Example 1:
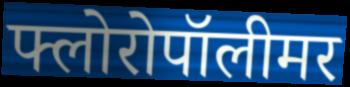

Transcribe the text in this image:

फ्लोरोपॉलीमर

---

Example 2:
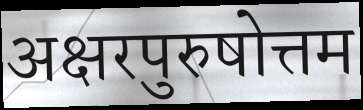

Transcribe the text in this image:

अक्षरपुरुषोत्तम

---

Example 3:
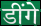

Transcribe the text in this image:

डींगे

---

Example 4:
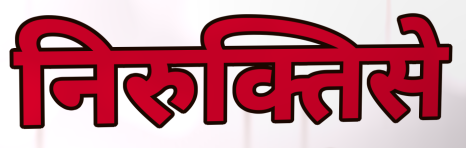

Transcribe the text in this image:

निरुक्तिसे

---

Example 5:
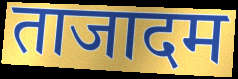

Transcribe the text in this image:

ताजादम